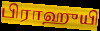
பிராஹுயி